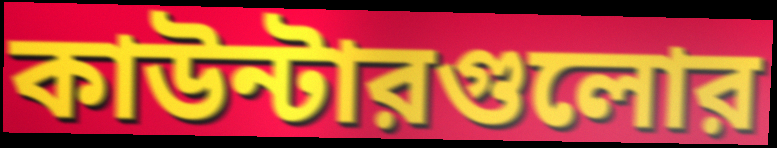
কাউন্টারগুলোর